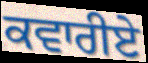
ਕਵਾਰੀਏ